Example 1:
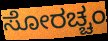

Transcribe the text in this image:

ಸೋರಚ್ಚಂ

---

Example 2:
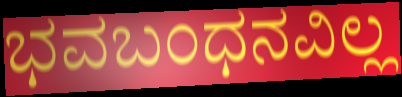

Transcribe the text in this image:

ಭವಬಂಧನವಿಲ್ಲ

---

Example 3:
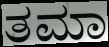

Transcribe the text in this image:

ತಮಾ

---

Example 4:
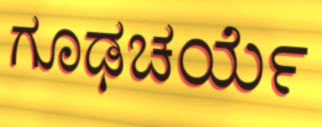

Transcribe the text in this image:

ಗೂಢಚರ್ಯೆ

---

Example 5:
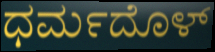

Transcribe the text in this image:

ಧರ್ಮದೊಳ್